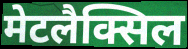
मेटलैक्सिल